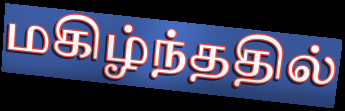
மகிழ்ந்ததில்